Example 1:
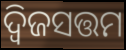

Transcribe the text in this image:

ଦ୍ୱିଜସତ୍ତମ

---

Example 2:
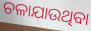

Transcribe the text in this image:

ଚଳାଯାଉଥିବା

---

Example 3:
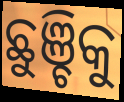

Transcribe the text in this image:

ଛୁଞ୍ଚିକୁ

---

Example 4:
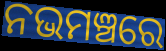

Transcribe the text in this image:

ନଭମଞ୍ଚରେ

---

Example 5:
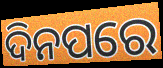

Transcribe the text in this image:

ଦିନପରେ